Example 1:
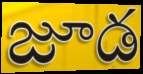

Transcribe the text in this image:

జూడ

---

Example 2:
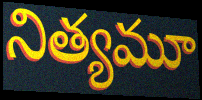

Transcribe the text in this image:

నిత్యమూ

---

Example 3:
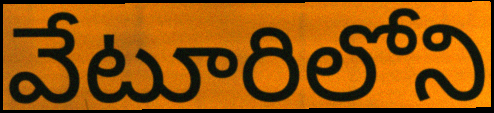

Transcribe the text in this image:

వేటూరిలోని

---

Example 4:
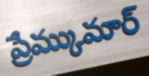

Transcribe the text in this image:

ప్రేమ్కుమార్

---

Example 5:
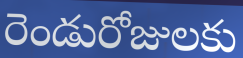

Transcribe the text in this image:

రెండురోజులకు